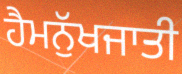
ਹੈਮਨੁੱਖਜਾਤੀ